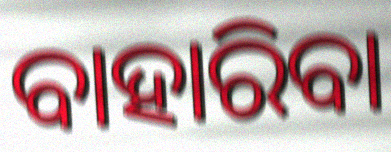
ବାହାରିବା